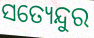
ସତ୍ୟେନ୍ଦୁର